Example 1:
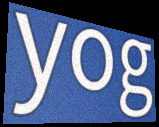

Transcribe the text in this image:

yog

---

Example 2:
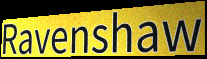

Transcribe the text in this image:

Ravenshaw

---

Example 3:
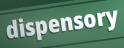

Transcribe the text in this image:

dispensory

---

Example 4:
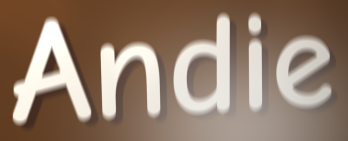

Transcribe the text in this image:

Andie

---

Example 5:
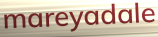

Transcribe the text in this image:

mareyadale